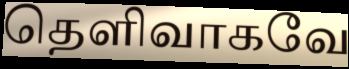
தெளிவாகவே